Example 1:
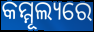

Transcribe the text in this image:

କମ୍ମୂଲ୍ୟରେ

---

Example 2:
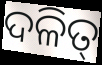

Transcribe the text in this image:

ଦଳିତ୍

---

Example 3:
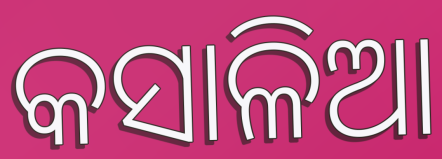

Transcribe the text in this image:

କସାଳିଆ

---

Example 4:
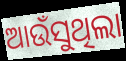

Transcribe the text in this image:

ଆଉଁସୁଥିଲା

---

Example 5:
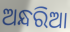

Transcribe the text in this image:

ଅନ୍ଧରିଆ